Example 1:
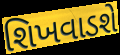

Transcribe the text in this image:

શિખવાડશે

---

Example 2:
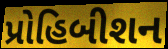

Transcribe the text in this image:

પ્રોહિબીશન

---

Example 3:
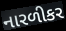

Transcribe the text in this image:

નારળીકર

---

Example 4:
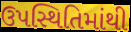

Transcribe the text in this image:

ઉપસ્થિતિમાંથી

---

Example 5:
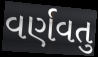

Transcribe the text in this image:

વર્ણવતુ